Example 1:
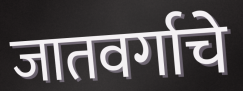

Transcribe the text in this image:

जातवर्गाचे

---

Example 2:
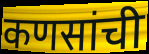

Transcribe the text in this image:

कणसांची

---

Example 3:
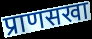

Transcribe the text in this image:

प्राणसखा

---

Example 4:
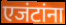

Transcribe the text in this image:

एजंटांना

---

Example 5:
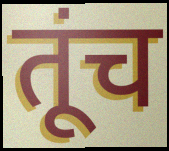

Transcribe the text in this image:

तूंच